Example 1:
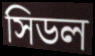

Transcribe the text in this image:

সিডল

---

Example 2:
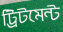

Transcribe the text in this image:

ট্রিটমেন্ট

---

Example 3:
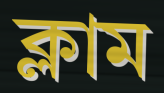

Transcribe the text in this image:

ক্লাম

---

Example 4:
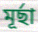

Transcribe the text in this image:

মূর্ছা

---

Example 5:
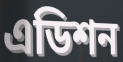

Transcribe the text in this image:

এডিশন